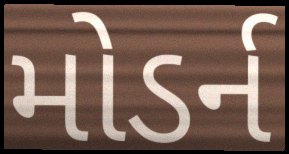
મોડર્ન